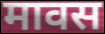
मावस